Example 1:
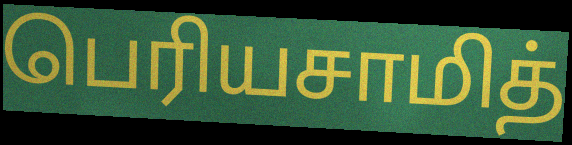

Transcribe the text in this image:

பெரியசாமித்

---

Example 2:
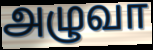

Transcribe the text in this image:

அழுவா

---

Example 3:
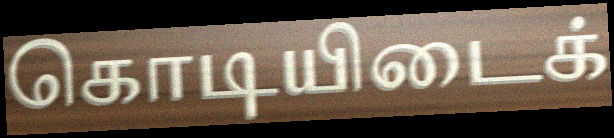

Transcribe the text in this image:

கொடியிடைக்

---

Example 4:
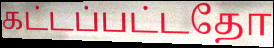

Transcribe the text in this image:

கட்டப்பட்டதோ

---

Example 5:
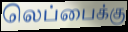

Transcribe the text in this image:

லெப்பைக்கு